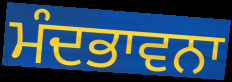
ਮੰਦਭਾਵਨਾ